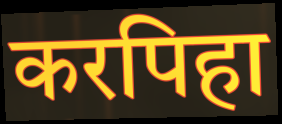
करपिहा